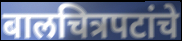
बालचित्रपटांचे